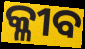
କ୍ଳୀବ